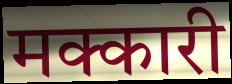
मक्कारी